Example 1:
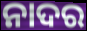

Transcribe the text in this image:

ନାଦର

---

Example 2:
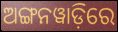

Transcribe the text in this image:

ଅଙ୍ଗନୱାଡ଼ିରେ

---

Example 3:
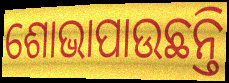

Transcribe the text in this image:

ଶୋଭାପାଉଛନ୍ତି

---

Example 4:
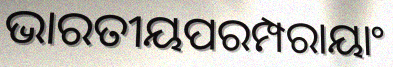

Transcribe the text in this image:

ଭାରତୀୟପରମ୍ପରାୟାଂ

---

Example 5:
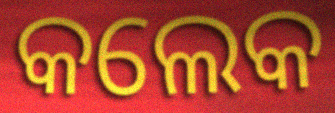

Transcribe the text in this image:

କଲେକ